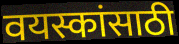
वयस्कांसाठी